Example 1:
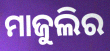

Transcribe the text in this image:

ମାଜୁଲିର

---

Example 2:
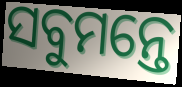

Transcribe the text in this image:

ସବୁମନ୍ତେ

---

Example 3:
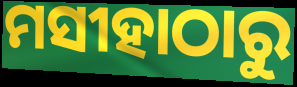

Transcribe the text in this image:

ମସୀହାଠାରୁ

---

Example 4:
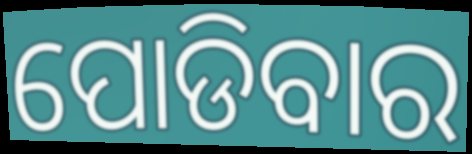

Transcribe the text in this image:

ପୋଡିବାର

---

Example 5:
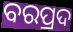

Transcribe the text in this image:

ବରପ୍ରଦ